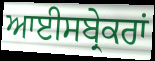
ਆਈਸਬ੍ਰੇਕਰਾਂ